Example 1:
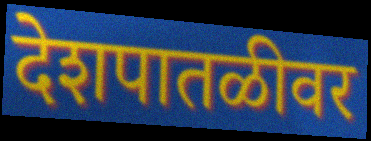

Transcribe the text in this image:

देशपातळीवर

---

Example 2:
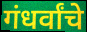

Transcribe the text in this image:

गंधर्वांचे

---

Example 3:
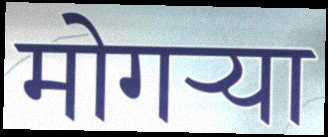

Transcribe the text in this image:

मोगऱ्या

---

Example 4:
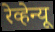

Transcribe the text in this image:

रेव्हेन्यू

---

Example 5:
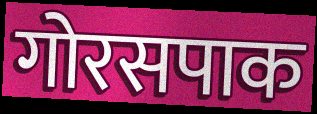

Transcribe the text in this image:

गोरसपाक